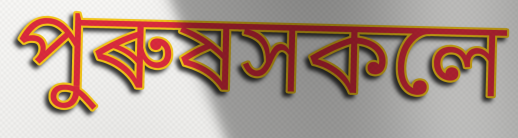
পুৰুষসকলে